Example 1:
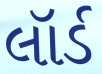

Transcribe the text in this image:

લૉર્ડ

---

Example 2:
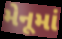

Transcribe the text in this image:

મેનૂમાં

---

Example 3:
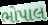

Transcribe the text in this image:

ભોપાલ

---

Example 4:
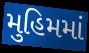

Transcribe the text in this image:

મુહિમમાં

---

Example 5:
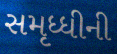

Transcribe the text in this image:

સમૃધ્ધીની